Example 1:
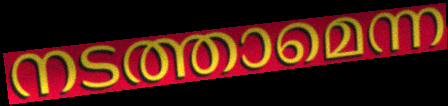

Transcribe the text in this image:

നടത്താമെന്ന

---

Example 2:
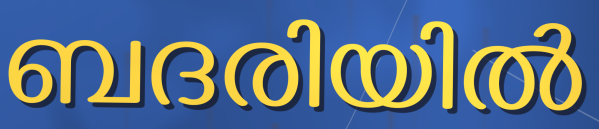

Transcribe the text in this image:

ബദരിയിൽ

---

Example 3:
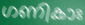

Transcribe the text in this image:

ഗണികാഃ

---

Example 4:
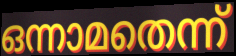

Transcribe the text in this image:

ഒന്നാമതെന്ന്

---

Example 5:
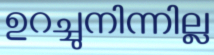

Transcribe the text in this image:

ഉറച്ചുനിന്നില്ല